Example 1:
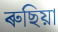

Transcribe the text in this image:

ৰুছিয়া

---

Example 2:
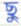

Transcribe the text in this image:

ছু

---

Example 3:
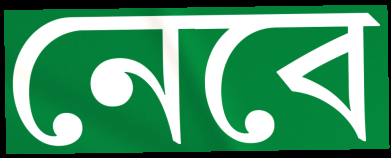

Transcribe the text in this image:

নেবে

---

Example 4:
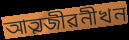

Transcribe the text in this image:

আত্মজীৱনীখন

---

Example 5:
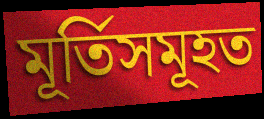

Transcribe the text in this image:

মূৰ্তিসমূহত